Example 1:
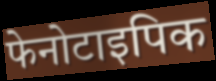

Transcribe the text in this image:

फेनोटाइपिक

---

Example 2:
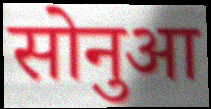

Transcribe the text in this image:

सोनुआ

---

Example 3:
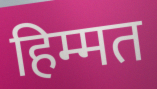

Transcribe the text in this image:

हिम्‍मत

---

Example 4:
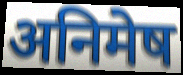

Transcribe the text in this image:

अनिमेष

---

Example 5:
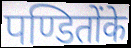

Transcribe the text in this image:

पण्डितोंके